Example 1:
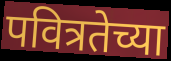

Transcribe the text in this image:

पवित्रतेच्या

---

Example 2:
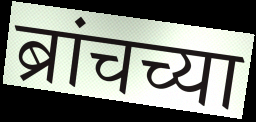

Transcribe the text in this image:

ब्रांचच्या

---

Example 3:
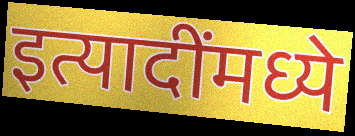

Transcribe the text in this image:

इत्यादींमध्ये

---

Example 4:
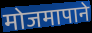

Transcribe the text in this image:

मोजमापाने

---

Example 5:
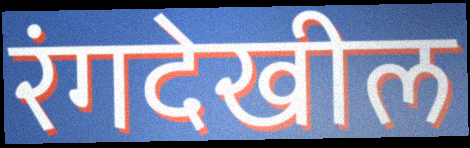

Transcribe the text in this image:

रंगदेखील